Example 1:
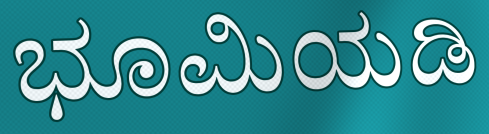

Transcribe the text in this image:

ಭೂಮಿಯಡಿ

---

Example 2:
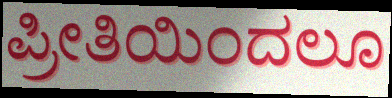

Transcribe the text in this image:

ಪ್ರೀತಿಯಿಂದಲೂ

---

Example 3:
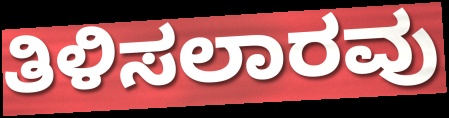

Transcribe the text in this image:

ತಿಳಿಸಲಾರವು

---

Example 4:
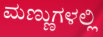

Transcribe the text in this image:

ಮಣ್ಣುಗಳಲ್ಲಿ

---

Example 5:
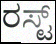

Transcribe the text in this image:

ರಸ್ಟ್